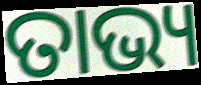
ତାଭ୍ୟ